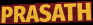
PRASATH